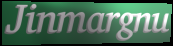
Jinmargnu